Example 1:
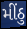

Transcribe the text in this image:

મીંઠુ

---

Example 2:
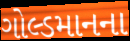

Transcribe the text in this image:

ગોલ્ડમાનના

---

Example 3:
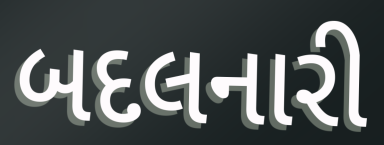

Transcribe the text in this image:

બદલનારી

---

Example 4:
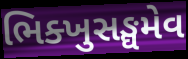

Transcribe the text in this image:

ભિક્ખુસઙ્ઘમેવ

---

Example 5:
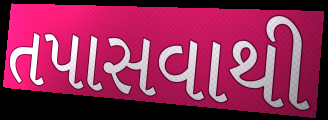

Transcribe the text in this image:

તપાસવાથી